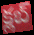
క్లబ్